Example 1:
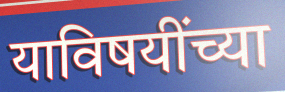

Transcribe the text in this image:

याविषयींच्या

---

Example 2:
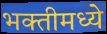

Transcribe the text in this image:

भक्तीमध्ये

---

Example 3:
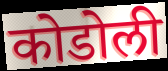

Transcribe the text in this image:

कोडोली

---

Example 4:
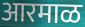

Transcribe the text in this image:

आरमाळ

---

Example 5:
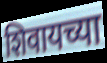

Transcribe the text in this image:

शिवायच्या